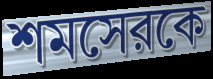
শমসেরকে